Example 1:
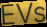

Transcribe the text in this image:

EVs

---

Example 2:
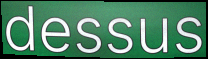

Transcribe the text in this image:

dessus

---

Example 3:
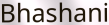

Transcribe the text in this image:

Bhashani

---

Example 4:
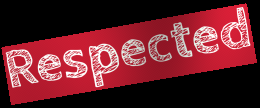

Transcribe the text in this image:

Respected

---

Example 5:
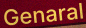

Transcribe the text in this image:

Genaral